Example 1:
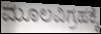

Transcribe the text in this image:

ಮೂಲವಿಗ್ರಹಕ್ಕೆ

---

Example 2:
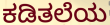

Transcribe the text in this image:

ಕಡಿತಲೆಯ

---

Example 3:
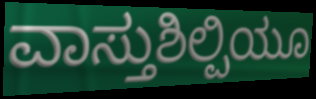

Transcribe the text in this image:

ವಾಸ್ತುಶಿಲ್ಪಿಯೂ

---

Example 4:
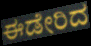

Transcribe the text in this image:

ಈಡೇರಿದ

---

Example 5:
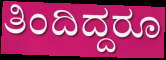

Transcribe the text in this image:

ತಿಂದಿದ್ದರೂ